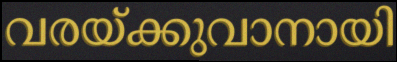
വരയ്ക്കുവാനായി